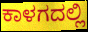
ಕಾಳಗದಲ್ಲಿ